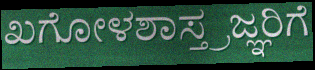
ಖಗೋಳಶಾಸ್ತ್ರಜ್ಞರಿಗೆ